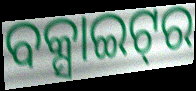
ବକ୍ସାଇଟ୍‌ର